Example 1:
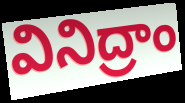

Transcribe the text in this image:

వినిద్రాం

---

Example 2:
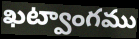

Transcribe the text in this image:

ఖట్వాంగము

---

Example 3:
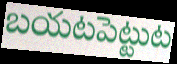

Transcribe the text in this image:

బయటపెట్టుట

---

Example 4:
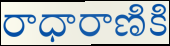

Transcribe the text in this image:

రాధారాణికి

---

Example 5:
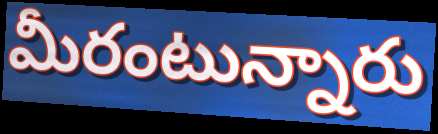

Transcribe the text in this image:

మీరంటున్నారు